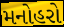
મનોહરો